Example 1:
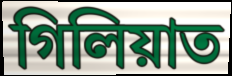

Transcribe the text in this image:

গিলিয়াত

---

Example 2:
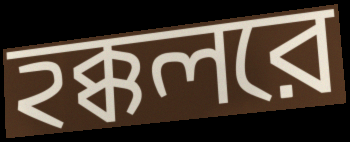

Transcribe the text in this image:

হক্কলরে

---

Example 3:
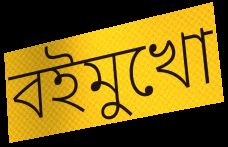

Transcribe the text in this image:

বইমুখো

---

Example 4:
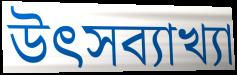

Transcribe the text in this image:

উৎসব্যাখ্যা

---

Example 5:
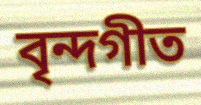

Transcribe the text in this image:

বৃন্দগীত